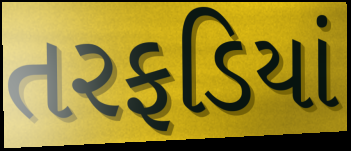
તરફડિયાં